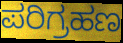
ಪರಿಗ್ರಹಣ